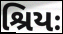
શ્રિયઃ